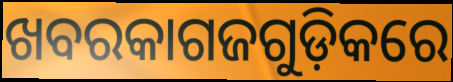
ଖବରକାଗଜଗୁଡ଼ିକରେ